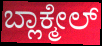
ಬ್ಲಾಕ್ಮೇಲ್